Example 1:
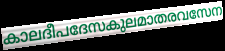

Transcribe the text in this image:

കാലദീപദേസകുലമാതരവസേന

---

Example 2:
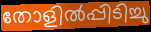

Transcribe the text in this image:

തോളിൽപ്പിടിച്ചു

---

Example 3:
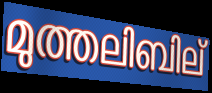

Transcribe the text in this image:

മുത്തലിബില്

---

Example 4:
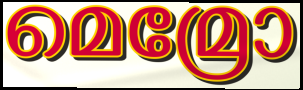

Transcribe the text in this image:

മെമ്രോ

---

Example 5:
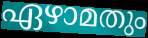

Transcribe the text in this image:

ഏഴാമതും